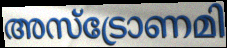
അസ്ട്രോണമി